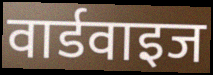
वार्डवाइज